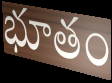
భూతం